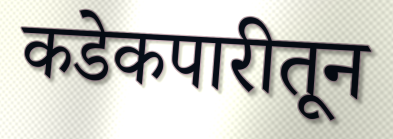
कडेकपारीतून